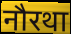
नौरथा